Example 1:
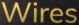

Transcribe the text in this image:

Wires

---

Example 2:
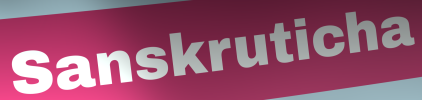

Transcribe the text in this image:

Sanskruticha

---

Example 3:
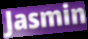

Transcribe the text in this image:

Jasmin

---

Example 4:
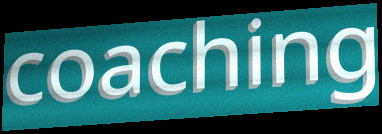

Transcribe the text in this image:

coaching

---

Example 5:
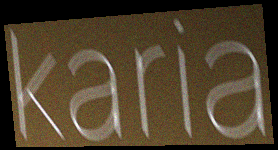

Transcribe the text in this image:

karia